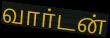
வார்டன்